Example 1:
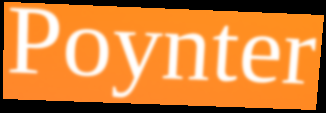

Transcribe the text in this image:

Poynter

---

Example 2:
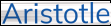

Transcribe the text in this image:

Aristotle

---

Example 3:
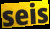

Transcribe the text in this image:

seis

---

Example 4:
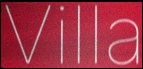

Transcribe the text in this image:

Villa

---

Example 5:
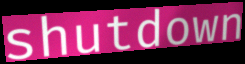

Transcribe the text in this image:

shutdown